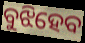
ବୁଝିହେବ